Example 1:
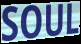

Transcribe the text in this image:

SOUL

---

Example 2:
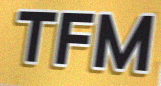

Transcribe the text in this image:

TFM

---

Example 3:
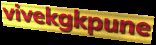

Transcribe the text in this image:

vivekgkpune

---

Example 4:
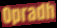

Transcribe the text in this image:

Opradh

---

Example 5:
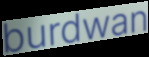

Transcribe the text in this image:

burdwan